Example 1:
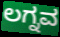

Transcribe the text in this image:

ಲಗ್ನವ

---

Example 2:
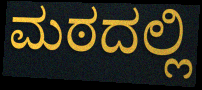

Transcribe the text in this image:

ಮಠದಲ್ಲಿ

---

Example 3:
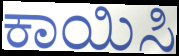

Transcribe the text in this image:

ಕಾಯಿಸಿ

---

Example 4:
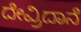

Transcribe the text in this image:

ದೇವ್ರಿದಾನೆ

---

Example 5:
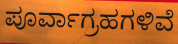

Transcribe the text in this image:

ಪೂರ್ವಾಗ್ರಹಗಳಿವೆ